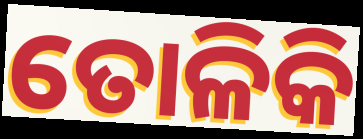
ତୋଳିକି